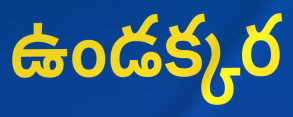
ఉండక్కర